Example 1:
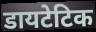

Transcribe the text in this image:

डायटेटिक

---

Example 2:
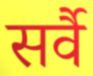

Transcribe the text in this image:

सर्वै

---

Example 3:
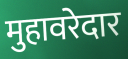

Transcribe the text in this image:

मुहावरेदार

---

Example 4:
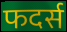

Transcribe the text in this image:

फदर्स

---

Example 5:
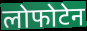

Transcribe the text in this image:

लोफोटेन